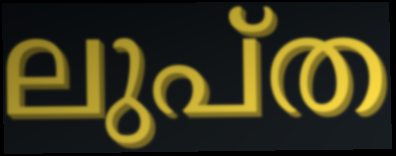
ലുപ്ത